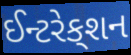
ઈન્ટરેક્‌શન